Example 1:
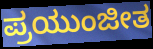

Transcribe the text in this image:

ಪ್ರಯುಂಜೀತ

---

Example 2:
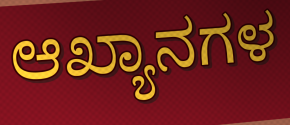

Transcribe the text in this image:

ಆಖ್ಯಾನಗಳ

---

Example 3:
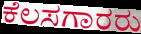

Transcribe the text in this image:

ಕೆಲಸಗಾರರು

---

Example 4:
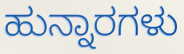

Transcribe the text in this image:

ಹುನ್ನಾರಗಳು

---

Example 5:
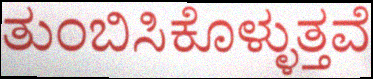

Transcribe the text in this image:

ತುಂಬಿಸಿಕೊಳ್ಳುತ್ತವೆ